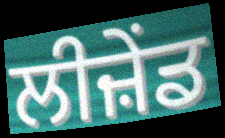
ਲੀਜ਼ੇਂਡ